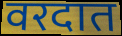
वरदात